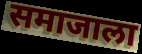
समाजाला